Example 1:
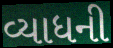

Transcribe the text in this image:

વ્યાધની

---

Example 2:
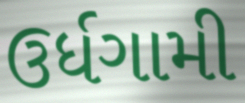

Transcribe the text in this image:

ઉર્ધગામી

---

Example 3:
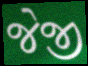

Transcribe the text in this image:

જેજી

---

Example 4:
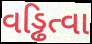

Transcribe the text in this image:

વડ્ઢિત્વા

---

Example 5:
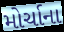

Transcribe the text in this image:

મોર્ચાના